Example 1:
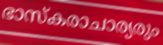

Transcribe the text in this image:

ഭാസ്കരാചാര്യരും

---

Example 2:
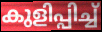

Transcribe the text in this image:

കുളിപ്പിച്ച്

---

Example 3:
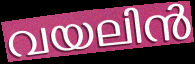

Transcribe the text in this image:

വയലിൻ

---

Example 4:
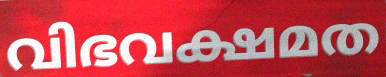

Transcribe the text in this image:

വിഭവക്ഷമത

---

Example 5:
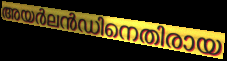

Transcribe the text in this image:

അയർലൻഡിനെതിരായ